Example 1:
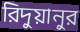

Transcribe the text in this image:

রিদুয়ানুর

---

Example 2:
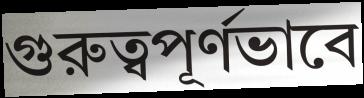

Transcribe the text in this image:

গুরুত্বপূর্ণভাবে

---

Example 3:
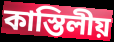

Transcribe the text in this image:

কাস্তিলীয়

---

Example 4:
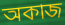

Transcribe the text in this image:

অকাজ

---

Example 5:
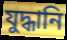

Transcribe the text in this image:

যুদ্ধানি